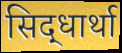
सिद्धार्था